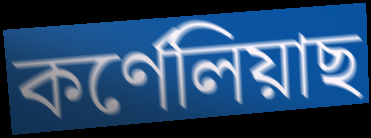
কৰ্ণেলিয়াছ